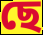
ছে